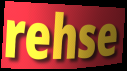
rehse